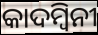
କାଦମ୍ୱିନୀ